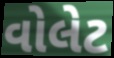
વોલેટ